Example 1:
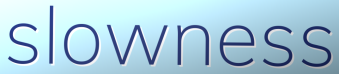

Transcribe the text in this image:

slowness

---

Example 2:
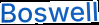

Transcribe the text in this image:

Boswell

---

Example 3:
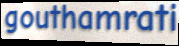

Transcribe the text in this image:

gouthamrati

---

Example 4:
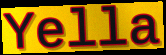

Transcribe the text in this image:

Yella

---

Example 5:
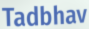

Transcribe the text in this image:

Tadbhav